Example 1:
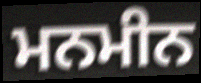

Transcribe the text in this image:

ਮਨਮੀਨ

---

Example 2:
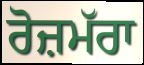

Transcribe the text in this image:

ਰੋਜ਼ਮੱਰਾ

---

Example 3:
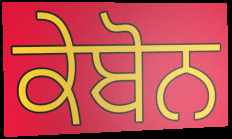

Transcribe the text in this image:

ਕੇਬੋਨ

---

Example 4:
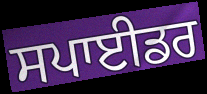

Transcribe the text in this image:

ਸਪਾਈਡਰ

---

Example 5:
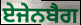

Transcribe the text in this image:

ਏਜੇਨਬੈਗ